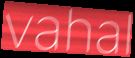
vahal